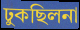
ঢুকছিলনা